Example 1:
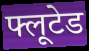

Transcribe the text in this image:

फ्लूटेड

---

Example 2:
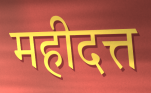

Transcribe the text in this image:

महीदत्त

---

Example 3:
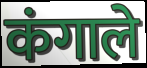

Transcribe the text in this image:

कंगाले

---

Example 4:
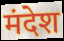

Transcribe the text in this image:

मंदेश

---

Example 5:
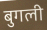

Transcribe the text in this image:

बुगली